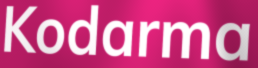
Kodarma